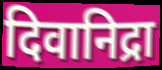
दिवानिद्रा